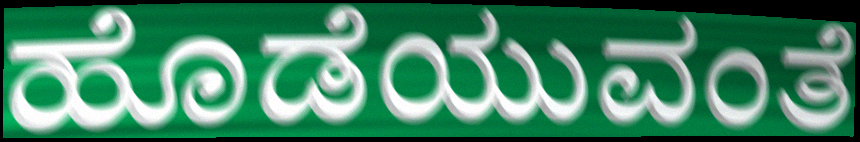
ಹೊಡೆಯುವಂತೆ